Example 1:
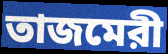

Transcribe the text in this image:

তাজমেরী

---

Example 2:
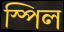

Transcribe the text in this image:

স্পিল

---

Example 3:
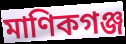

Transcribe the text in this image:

মাণিকগঞ্জ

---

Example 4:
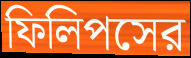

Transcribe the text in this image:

ফিলিপসের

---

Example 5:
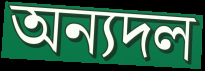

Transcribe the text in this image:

অন্যদল